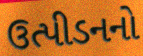
ઉત્પીડનનો